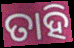
ତାହି